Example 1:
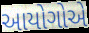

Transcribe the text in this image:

આયોગોએ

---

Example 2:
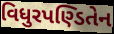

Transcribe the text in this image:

વિધુરપણ્ડિતેન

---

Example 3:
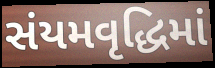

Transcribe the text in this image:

સંયમવૃદ્ધિમાં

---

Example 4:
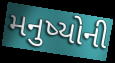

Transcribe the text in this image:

મનુષ્યોની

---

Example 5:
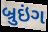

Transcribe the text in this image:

બ્રુઇંગ